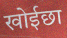
खोईछा